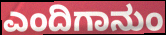
ಎಂದಿಗಾನುಂ